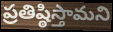
ప్రతిష్ఠిస్తామని